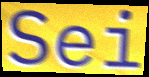
Sei